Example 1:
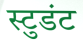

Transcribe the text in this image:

स्टुडंट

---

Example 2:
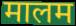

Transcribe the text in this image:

मालम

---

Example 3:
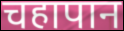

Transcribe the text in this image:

चहापान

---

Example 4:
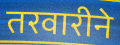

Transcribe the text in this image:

तरवारीने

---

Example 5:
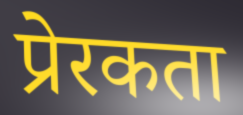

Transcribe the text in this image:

प्रेरकता